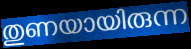
തുണയായിരുന്ന